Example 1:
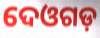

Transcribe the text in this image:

ଦେଓଗଡ଼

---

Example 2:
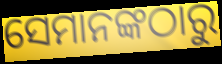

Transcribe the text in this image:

ସେମାନଙ୍କଠାରୁ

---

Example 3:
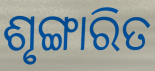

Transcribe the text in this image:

ଶୃଙ୍ଗାରିତ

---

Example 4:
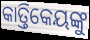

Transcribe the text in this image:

କାତ୍ତିକେୟଙ୍କୁ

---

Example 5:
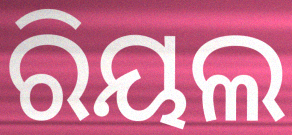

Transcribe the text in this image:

ରିୟଲ